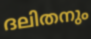
ദലിതനും